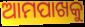
ଆମପାଖକୁ